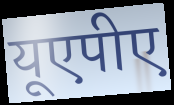
यूएपीए